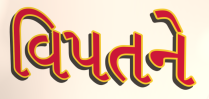
વિપતને